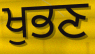
ਖੁਭਣ